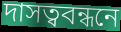
দাসত্ববন্ধনে